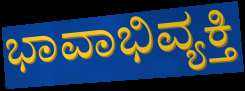
ಭಾವಾಭಿವ್ಯಕ್ತಿ